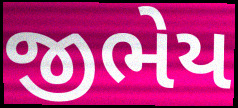
જીભેય